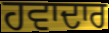
ਹਵਾਦਾਰ